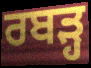
ਰਬੜ੍ਹ